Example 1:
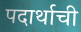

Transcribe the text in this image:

पदार्थाची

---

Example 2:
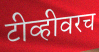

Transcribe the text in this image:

टीव्हीवरच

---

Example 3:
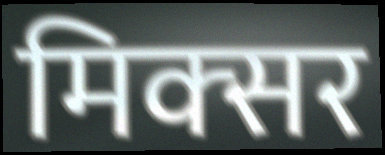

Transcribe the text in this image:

मिक्‍सर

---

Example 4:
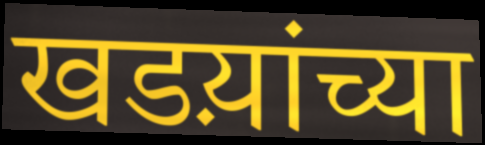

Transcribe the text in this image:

खडय़ांच्या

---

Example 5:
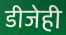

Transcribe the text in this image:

डीजेही